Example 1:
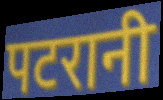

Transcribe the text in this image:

पटरानी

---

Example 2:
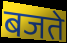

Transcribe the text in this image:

बजते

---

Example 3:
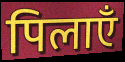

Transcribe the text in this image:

पिलाएँ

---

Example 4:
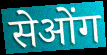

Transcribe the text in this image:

सेओंग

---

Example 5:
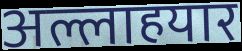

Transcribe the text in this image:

अल्लाहयार